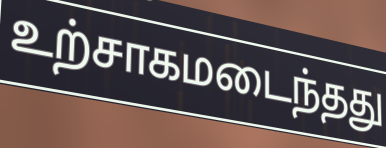
உற்சாகமடைந்தது